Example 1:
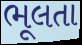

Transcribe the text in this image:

ભૂલતા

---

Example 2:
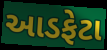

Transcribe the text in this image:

આડફેટા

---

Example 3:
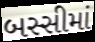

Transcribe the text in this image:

બસ્સીમાં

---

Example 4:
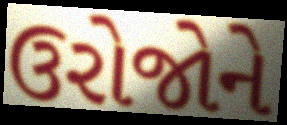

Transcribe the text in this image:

ઉરોજોને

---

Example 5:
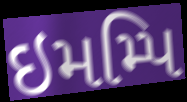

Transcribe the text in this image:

ઇમમ્પિ